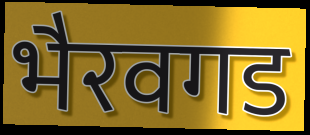
भैरवगड